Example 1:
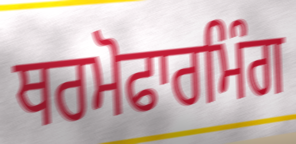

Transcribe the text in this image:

ਥਰਮੋਫਾਰਮਿੰਗ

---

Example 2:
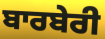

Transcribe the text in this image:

ਬਾਰਬੇਰੀ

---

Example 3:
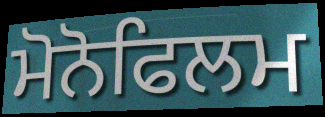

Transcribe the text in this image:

ਮੋਨੋਫਿਲਮ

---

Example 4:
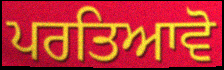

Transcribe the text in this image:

ਪਰਤਿਆਵੋ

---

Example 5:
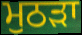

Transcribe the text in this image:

ਮੁਠੜਾ